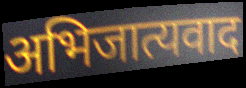
अभिजात्यवाद